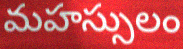
మహస్సులం